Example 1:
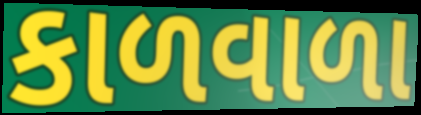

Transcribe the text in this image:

કાળવાળા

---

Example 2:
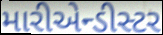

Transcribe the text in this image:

મારીએન્ડીસ્ટર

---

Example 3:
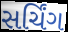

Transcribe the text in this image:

સર્ચિંગ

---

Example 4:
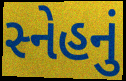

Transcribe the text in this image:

સ્નેહનું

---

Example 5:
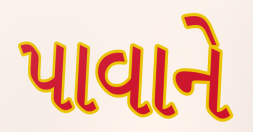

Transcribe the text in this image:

પાવાને